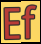
Ef